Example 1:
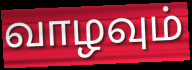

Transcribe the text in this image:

வாழவும்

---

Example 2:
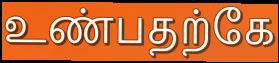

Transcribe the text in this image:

உண்பதற்கே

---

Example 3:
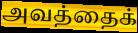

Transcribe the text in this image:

அவத்தைக்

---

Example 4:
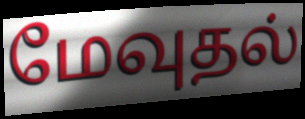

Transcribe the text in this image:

மேவுதல்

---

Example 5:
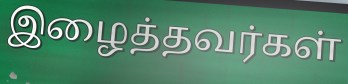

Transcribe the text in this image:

இழைத்தவர்கள்